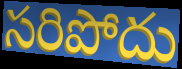
సరిపోదు